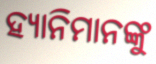
ହ୍ୟାନିମାନଙ୍କୁ